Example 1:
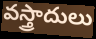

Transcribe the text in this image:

వస్త్రాదులు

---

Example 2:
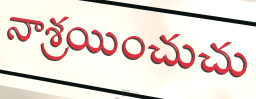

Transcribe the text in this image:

నాశ్రయించుచు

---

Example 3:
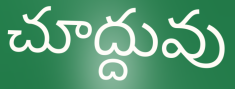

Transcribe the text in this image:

చూద్దువు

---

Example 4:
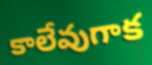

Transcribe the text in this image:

కాలేవుగాక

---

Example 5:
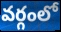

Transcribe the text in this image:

వర్గంలో